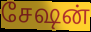
சேஷன்